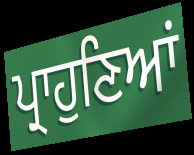
ਪ੍ਰਾਹੁਣਿਆਂ